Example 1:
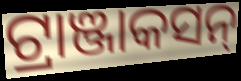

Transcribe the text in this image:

ଟ୍ରାଞ୍ଜାକସନ୍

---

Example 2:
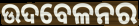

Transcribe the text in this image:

ଉଦବେଳନର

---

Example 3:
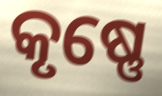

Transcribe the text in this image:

କୃଷ୍ଣେ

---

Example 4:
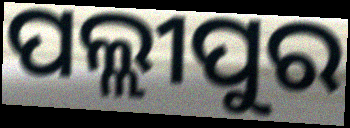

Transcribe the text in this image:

ପଲ୍ଲୀପୁର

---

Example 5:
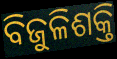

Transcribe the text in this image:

ବିଜୁଳିଶକ୍ତି